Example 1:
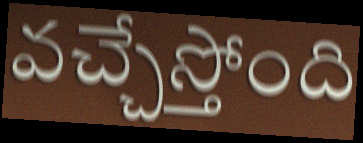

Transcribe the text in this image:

వచ్చేస్తోంది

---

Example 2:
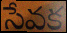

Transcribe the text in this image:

సేవక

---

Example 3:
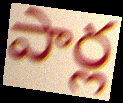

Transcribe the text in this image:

పార్ల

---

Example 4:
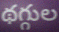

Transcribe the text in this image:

థగ్గుల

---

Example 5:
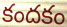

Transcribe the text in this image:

కందకం